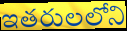
ఇతరులలోని